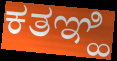
ಕತಞ್ಹಿ